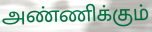
அண்ணிக்கும்